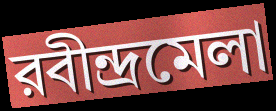
রবীন্দ্রমেলা